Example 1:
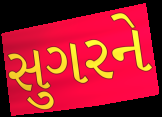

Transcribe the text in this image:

સુગરને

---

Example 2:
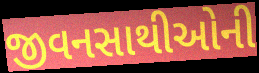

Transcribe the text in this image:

જીવનસાથીઓની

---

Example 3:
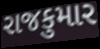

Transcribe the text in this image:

રાજકુમાર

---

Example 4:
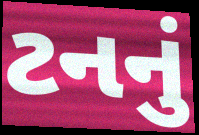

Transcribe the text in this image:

ટનનું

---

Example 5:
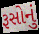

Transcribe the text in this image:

રૂસોનું